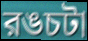
রঙচটা